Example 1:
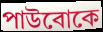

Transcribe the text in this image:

পাউবোকে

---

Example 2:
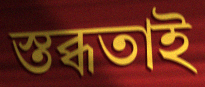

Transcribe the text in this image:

স্তব্ধতাই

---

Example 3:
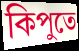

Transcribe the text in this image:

কিপুতে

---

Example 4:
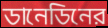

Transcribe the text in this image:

ডানেডিনের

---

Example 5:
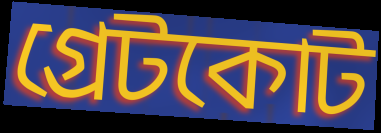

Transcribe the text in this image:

গ্রেটকোট